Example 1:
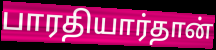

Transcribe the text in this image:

பாரதியார்தான்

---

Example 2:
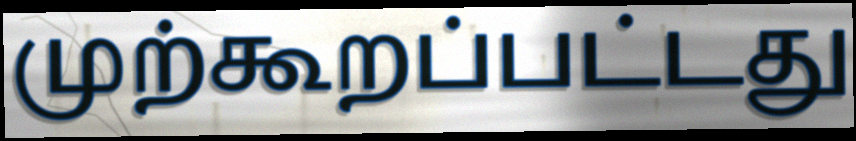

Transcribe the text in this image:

முற்கூறப்பட்டது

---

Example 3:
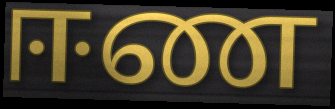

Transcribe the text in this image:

ஈண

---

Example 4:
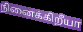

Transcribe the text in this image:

நினைக்கிறீயா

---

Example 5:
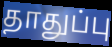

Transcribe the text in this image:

தாதுப்பு